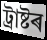
ট্ৰাষ্টৰ